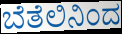
ಬೆತೆಲಿನಿಂದ